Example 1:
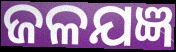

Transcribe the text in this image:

ଜଳଯଜ୍ଞ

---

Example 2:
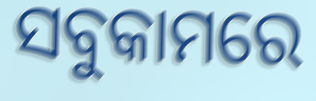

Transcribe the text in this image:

ସବୁକାମରେ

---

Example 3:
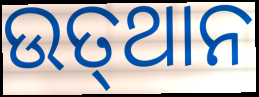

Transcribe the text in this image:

ଉତ୍‍ଥାନ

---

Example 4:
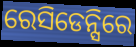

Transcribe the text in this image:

ରେସିଡେନ୍ସିରେ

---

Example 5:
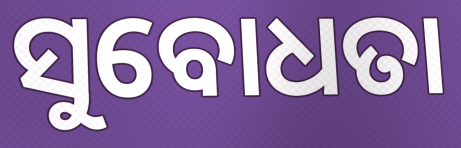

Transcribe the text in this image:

ସୁବୋଧତା